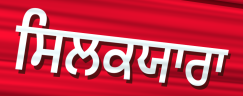
ਸਿਲਕਯਾਰਾ